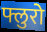
फ्लुरो